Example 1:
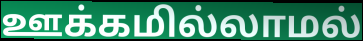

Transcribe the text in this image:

ஊக்கமில்லாமல்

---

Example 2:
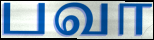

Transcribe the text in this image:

பவா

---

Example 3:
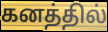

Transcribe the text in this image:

கனத்தில்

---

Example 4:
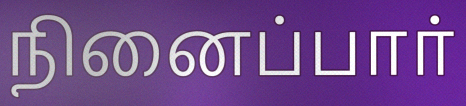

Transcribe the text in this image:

நினைப்பார்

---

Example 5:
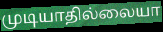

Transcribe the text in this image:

முடியாதில்லையா